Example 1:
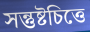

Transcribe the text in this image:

সন্তুষ্টচিত্তে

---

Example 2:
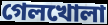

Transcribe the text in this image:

গেলখোলা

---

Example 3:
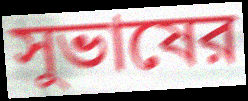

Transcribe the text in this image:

সুভাষের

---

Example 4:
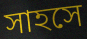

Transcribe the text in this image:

সাহসে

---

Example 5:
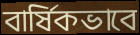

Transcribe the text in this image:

বার্ষিকভাবে